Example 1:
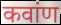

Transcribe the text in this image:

कवांण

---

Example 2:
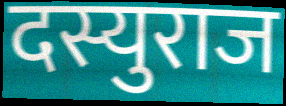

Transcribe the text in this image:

दस्युराज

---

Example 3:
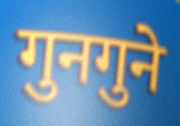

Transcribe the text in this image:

गुनगुने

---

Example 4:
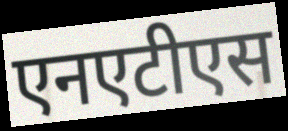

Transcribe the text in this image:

एनएटीएस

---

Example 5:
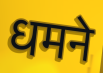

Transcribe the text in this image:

धमने